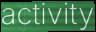
activity